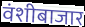
वंशीबाजार